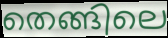
തെങ്ങിലെ